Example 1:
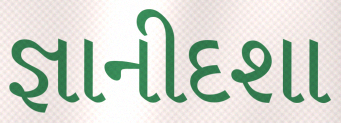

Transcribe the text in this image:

જ્ઞાનીદશા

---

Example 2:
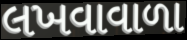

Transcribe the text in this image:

લખવાવાળા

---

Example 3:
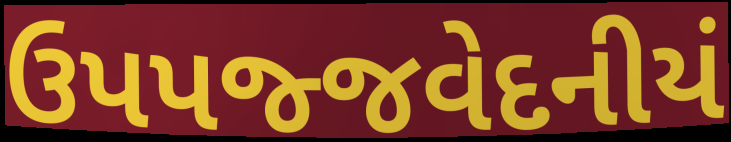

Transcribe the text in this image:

ઉપપજ્જવેદનીયં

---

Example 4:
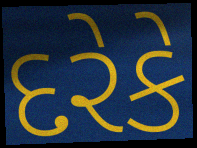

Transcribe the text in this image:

દરેકે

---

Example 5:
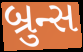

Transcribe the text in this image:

બ્રુન્સ